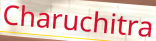
Charuchitra